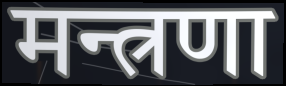
मन्त्रणा